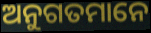
ଅନୁଗତମାନେ